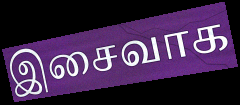
இசைவாக